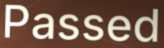
Passed